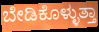
ಬೇಡಿಕೊಳ್ಳುತ್ತಾ